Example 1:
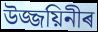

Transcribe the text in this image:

উজ্জয়িনীৰ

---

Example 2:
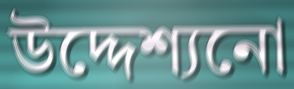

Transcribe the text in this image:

উদ্দেশ্যনো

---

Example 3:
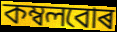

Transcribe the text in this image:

কম্বলবোৰ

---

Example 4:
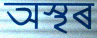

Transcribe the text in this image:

অস্থৰ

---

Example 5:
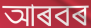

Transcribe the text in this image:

আৰবৰ